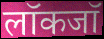
लॉकजॉ